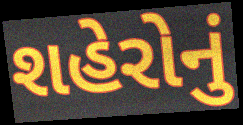
શહેરોનું